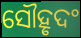
ସୌହୃଦଂ